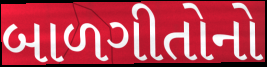
બાળગીતોનો